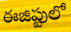
ఈజిప్టులో